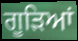
ਗੂੜਿਆਂ